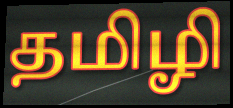
தமிழி